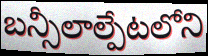
బన్సీలాల్పేటలోని